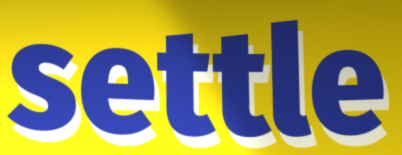
settle